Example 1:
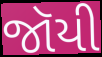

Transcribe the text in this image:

જૉયી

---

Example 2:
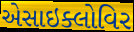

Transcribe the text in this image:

એસાઇક્લોવિર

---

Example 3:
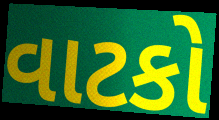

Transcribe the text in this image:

વાટકો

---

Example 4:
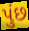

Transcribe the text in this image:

પુંછ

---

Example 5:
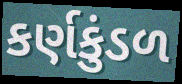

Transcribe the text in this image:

કર્ણકુંડળ